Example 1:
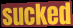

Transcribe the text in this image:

sucked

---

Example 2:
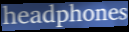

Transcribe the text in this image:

headphones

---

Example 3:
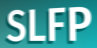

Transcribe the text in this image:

SLFP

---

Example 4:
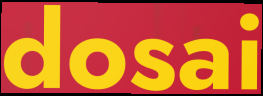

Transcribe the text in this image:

dosai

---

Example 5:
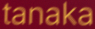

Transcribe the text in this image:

tanaka